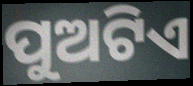
ପୁଅଟିଏ